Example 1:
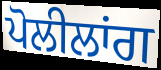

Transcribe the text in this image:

ਪੋਲੀਲਾਂਗ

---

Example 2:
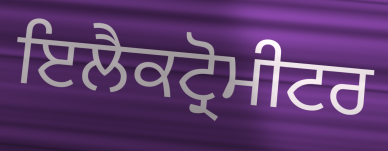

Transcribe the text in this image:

ਇਲੈਕਟ੍ਰੋਮੀਟਰ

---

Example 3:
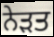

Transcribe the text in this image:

ਨੇੜਤ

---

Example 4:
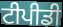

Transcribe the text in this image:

ਟੀਪੀਡੀ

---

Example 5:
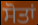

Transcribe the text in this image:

ਸੋਤਾਂ